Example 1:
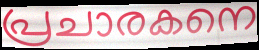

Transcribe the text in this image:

പ്രചാരകനെ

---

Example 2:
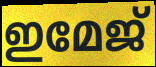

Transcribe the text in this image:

ഇമേജ്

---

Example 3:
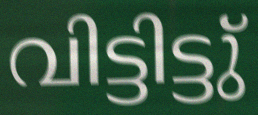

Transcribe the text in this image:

വിട്ടിട്ടു്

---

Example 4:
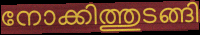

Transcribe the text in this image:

നോക്കിത്തുടങ്ങി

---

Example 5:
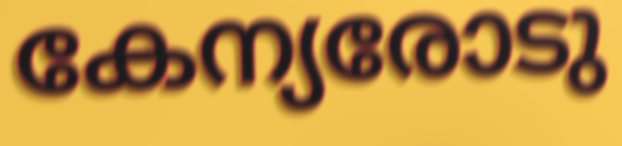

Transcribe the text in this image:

കേന്യരോടു